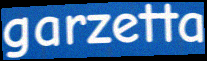
garzetta